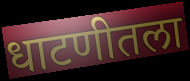
धाटणीतला